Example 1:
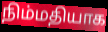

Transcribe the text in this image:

நிம்மதியாக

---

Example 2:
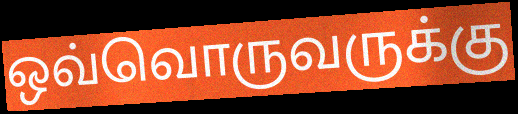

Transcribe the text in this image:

ஒவ்வொருவருக்கு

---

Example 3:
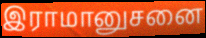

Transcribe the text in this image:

இராமானுசனை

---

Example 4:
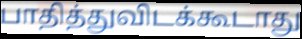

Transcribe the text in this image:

பாதித்துவிடக்கூடாது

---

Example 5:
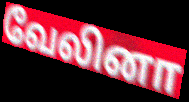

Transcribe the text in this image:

வேலினா